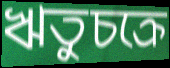
ঋতুচক্রে